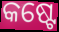
କଷ୍ଟେ